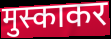
मुस्काकर